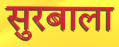
सुरबाला